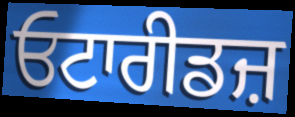
ਓਟਾਰੀਡਜ਼